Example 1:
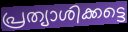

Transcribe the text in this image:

പ്രത്യാശിക്കട്ടെ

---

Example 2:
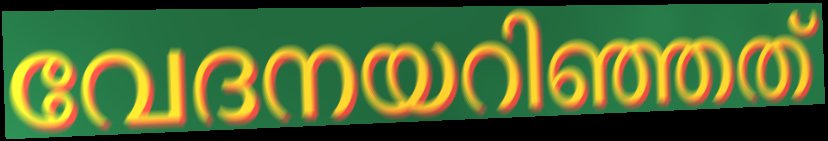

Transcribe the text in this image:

വേദനയറിഞ്ഞത്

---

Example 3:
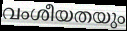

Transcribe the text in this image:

വംശീയതയും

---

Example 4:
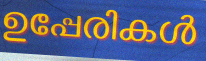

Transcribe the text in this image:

ഉപ്പേരികൾ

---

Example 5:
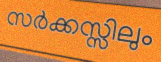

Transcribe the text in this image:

സർക്കസ്സിലും